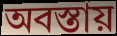
অবস্তায়